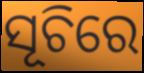
ସୂଚିରେ